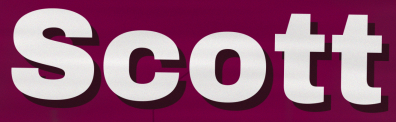
Scott